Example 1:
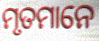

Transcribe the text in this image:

ମୃତମାନେ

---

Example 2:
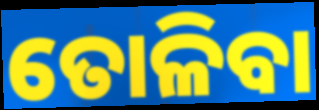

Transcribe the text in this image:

ତୋଳିବା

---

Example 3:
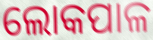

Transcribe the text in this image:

ଲୋକପାଳ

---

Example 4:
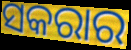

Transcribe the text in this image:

ସକରାର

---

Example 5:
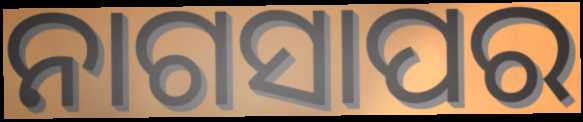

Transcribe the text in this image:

ନାଗସାପର